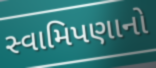
સ્વામિપણાનો